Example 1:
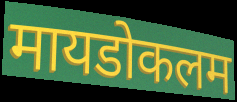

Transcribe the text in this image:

मायडोकलम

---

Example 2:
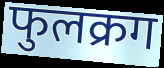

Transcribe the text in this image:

फुलक्रग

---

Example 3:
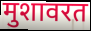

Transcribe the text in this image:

मुशावरत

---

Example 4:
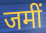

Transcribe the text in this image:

जमीं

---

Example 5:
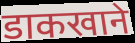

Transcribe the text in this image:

डाकखाने